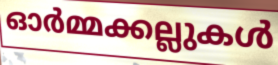
ഓർമ്മക്കല്ലുകൾ